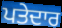
ਪਤੇਦਾਰ